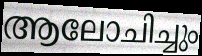
ആലോചിച്ചും